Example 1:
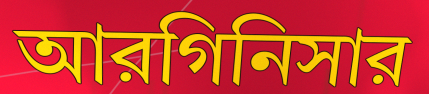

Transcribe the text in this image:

আরগিনিসার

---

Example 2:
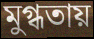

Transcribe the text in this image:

মুগ্ধতায়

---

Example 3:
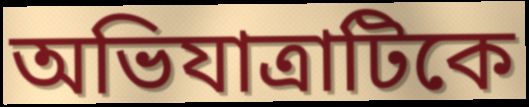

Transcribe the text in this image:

অভিযাত্রাটিকে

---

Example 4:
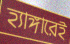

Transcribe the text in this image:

হ্যাঙ্গারেই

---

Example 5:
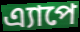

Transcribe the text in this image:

এ্যাপে